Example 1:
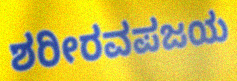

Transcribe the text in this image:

ಶರೀರವಪಜಯ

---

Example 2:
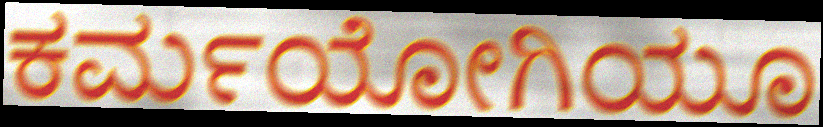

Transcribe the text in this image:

ಕರ್ಮಯೋಗಿಯೂ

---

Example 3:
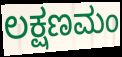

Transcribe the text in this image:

ಲಕ್ಷಣಮಂ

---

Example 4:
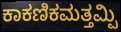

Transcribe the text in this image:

ಕಾಕಣಿಕಮತ್ತಮ್ಪಿ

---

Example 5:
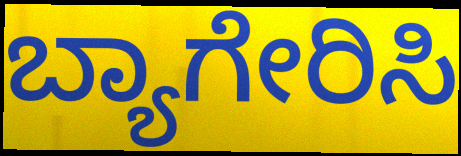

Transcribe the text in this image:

ಬ್ಯಾಗೇರಿಸಿ